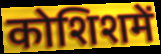
कोशिशमें